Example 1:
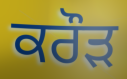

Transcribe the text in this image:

ਕਰੌੜ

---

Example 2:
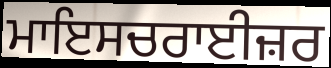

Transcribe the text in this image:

ਮਾਇਸਚਰਾਈਜ਼ਰ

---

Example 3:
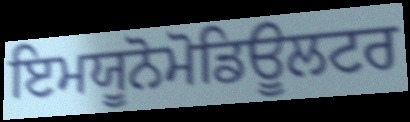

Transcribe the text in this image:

ਇਮਯੂਨੋਮੋਡਿਊਲਟਰ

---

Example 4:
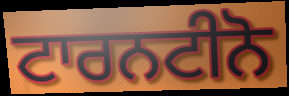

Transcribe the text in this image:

ਟਾਰਨਟੀਨੋ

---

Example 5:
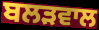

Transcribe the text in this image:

ਬਲੜਵਾਲ